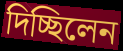
দিচ্ছিলেন